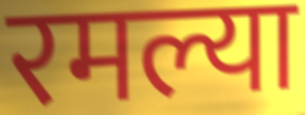
रमल्या